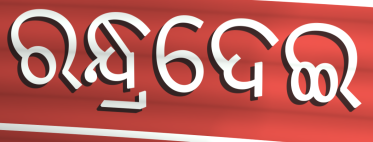
ରନ୍ଧ୍ରଦେଇ